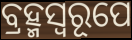
ବ୍ରହ୍ମସ୍ୱରୂପେ